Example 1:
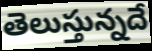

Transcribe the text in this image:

తెలుస్తున్నదే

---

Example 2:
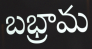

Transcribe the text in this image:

బభ్రామ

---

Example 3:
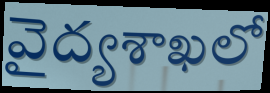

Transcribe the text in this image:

వైద్యశాఖలో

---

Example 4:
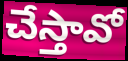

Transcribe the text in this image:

చేస్తావో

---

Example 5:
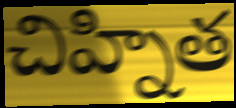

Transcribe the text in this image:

చిహ్నిత